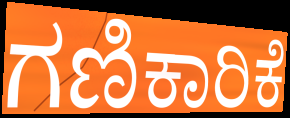
ಗಣಿಕಾರಿಕೆ